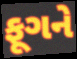
ફૂગને